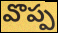
వొప్ప